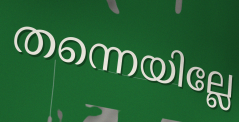
തന്നെയില്ലേ